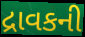
દ્રાવકની